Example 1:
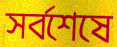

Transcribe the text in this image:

সর্বশেষে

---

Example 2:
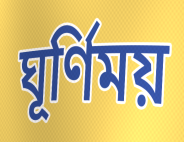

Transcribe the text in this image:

ঘূর্ণিময়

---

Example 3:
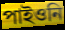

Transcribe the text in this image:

পাইওনি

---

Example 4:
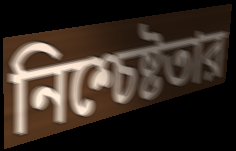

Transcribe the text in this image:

নিশ্চেষ্টতার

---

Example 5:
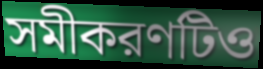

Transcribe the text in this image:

সমীকরণটিও